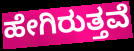
ಹೇಗಿರುತ್ತವೆ